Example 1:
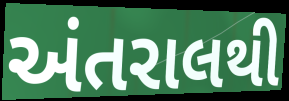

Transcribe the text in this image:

અંતરાલથી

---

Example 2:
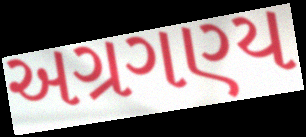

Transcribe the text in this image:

અગ્રગણ્ય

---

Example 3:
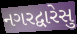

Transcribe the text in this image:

નગરદ્વારેસુ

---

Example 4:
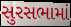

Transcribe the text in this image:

સુરસભામાં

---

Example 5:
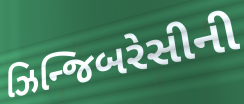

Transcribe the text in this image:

ઝિન્જિબરેસીની